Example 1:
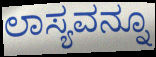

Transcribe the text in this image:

ಲಾಸ್ಯವನ್ನೂ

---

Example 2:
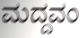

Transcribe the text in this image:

ಮದ್ದವಂ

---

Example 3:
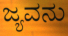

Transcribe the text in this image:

ಜ್ಯವನು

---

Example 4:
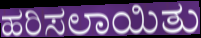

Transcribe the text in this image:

ಹರಿಸಲಾಯಿತು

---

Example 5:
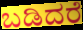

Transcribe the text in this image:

ಬಡಿದರೆ